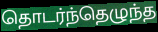
தொடர்ந்தெழுந்த